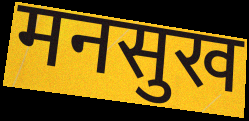
मनसुख